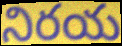
నిరయ